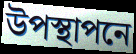
উপস্থাপনে